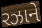
રઝાને